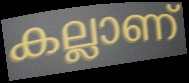
കല്ലാണ്